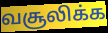
வசூலிக்க